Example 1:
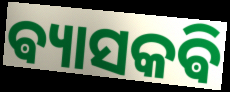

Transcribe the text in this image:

ଵ୍ୟାସକଵି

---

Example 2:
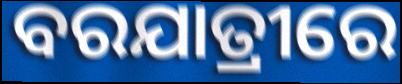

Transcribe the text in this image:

ବରଯାତ୍ରୀରେ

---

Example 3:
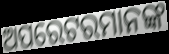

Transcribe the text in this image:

ଅପରେଟରମାନଙ୍କ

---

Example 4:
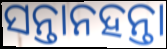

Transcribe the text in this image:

ସନ୍ତାନହନ୍ତା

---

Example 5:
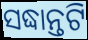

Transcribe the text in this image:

ସଦ୍ଧାନ୍ତଟି